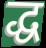
द्ध